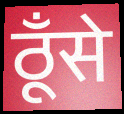
ठूँसे